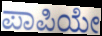
ಪಾಪಿಯೇ